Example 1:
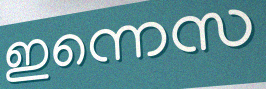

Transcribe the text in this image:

ഇന്നെസ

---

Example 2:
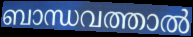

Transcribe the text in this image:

ബാന്ധവത്താൽ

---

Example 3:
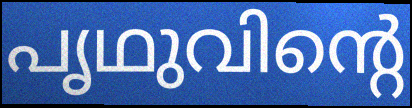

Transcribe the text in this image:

പൃഥുവിന്റെ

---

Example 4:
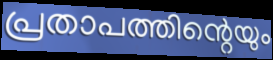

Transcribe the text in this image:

പ്രതാപത്തിന്റെയും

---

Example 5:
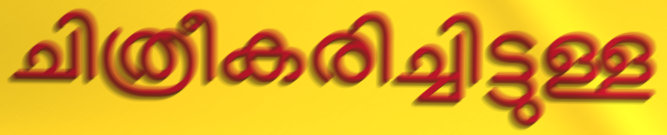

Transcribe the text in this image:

ചിത്രീകരിച്ചിട്ടുള്ള